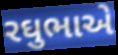
રઘુભાએ